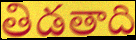
తిడతాది